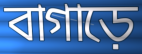
বাগাড়ে